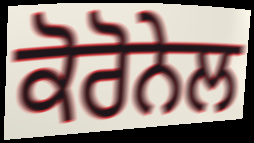
ਕੋਰੋਨੇਲ